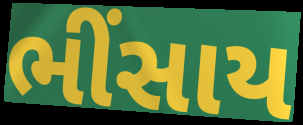
ભીંસાય